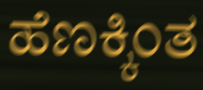
ಹೆಣಕ್ಕಿಂತ